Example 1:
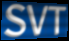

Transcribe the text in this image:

SVT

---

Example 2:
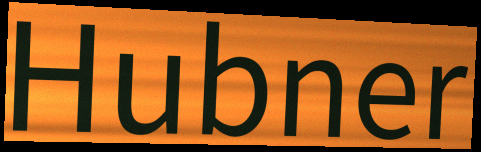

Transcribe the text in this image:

Hubner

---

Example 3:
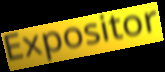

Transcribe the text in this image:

Expositor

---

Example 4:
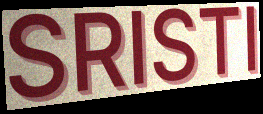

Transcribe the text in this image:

SRISTI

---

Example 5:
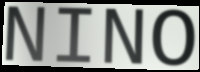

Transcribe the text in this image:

NINO